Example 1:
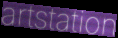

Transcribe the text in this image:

artstation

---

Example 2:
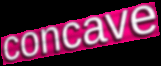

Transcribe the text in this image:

concave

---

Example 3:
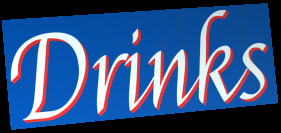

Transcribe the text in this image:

Drinks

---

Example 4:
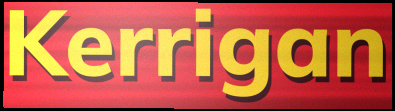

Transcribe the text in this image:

Kerrigan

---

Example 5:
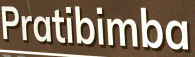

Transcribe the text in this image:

Pratibimba